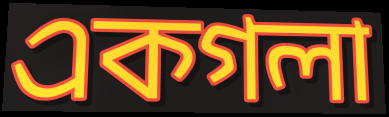
একগলা